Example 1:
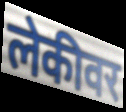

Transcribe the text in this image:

लेकीवर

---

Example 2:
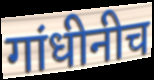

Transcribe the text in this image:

गांधीनीच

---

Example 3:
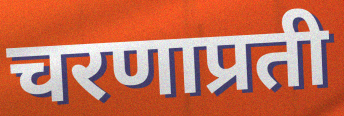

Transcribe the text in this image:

चरणाप्रती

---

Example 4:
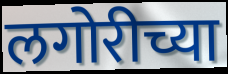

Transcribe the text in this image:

लगोरीच्या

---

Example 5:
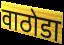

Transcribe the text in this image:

वाठोडा